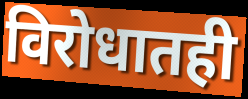
विरोधातही